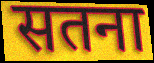
सतना